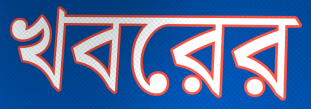
খবরের